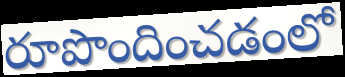
రూపొందించడంలో